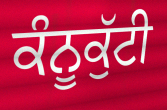
ਕੰਨੂਕੁੱਟੀ